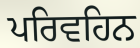
ਪਰਿਵਹਿਨ